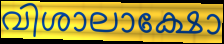
വിശാലാക്ഷോ